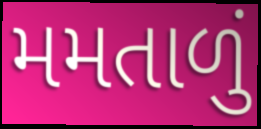
મમતાળું